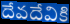
దేవదేవికి